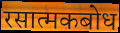
रसात्मकबोध